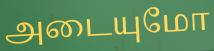
அடையுமோ